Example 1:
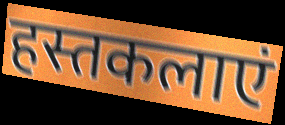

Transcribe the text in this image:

हस्तकलाएं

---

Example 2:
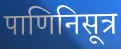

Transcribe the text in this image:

पाणिनिसूत्र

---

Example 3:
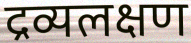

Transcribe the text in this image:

द्रव्यलक्षण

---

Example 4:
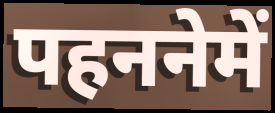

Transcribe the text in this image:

पहननेमें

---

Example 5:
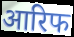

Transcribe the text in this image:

आरिफ